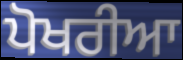
ਪੋਖਰੀਆ